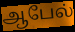
ஆபேல்